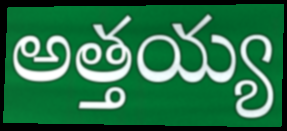
అత్తయ్య